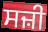
ਸਜ਼ੀ